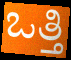
ಒತ್ತಿ